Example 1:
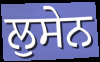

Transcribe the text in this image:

ਲੁਸੇਨ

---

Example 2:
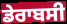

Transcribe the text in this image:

ਡੇਰਾਬਸੀ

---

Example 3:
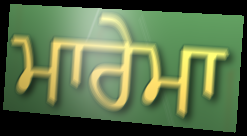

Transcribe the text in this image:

ਮਾਰੇਮਾ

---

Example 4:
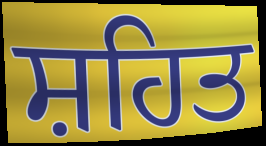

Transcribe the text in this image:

ਸ਼ਹਿਤ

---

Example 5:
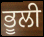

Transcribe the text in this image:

ਭੂਲੀ